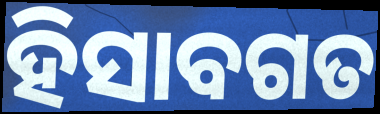
ହିସାବଗତ